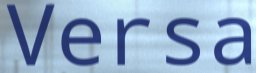
Versa